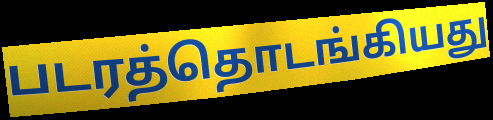
படரத்தொடங்கியது